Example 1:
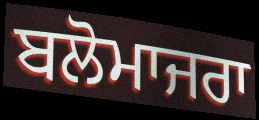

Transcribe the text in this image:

ਬਲੋਮਾਜਰਾ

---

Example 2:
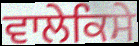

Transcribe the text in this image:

ਵਾਲੇਕਿਸੇ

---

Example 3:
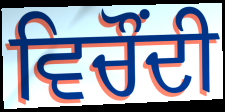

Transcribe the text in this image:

ਵਿਚੌਂਦੀ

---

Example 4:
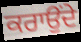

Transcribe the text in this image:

ਕਰਾਉੰਦੇ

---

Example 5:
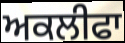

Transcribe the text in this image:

ਅਕਲੀਫਾ